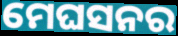
ମେଘସନର